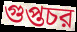
গুপ্তচর